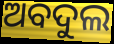
ଅବଦୁଲ